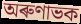
অৰুণাভক